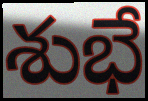
శుభే